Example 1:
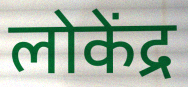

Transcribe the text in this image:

लोकेंद्र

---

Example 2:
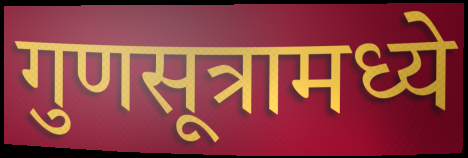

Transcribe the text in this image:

गुणसूत्रामध्ये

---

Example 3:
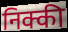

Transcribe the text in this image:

निक्की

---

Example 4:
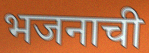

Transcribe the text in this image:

भजनाची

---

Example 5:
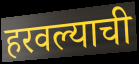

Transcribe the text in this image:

हरवल्याची